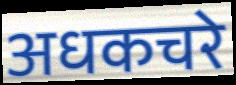
अधकचरे